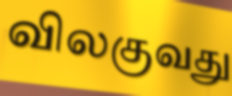
விலகுவது